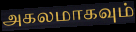
அகலமாகவும்